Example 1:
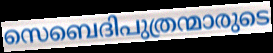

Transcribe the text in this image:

സെബെദിപുത്രന്മാരുടെ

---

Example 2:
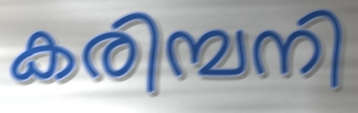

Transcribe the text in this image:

കരിമ്പനി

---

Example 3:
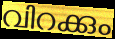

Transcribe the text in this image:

വിറക്കും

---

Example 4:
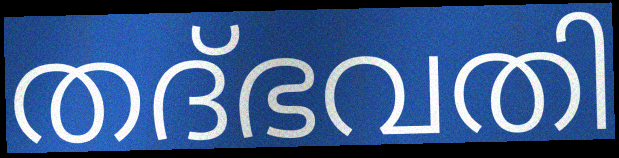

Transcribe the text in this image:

തദ്ഭവതി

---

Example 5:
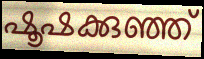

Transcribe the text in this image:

ഷൂഷക്കുഞ്ഞ്